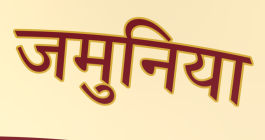
जमुनिया